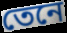
তেনে